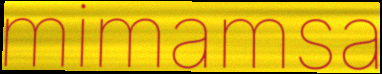
mimamsa